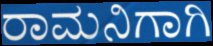
ರಾಮನಿಗಾಗಿ